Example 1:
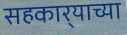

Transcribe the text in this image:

सहकार्‍याच्या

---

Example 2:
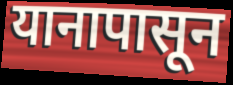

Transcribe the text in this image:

यानापासून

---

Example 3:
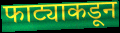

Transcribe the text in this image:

फाट्याकडून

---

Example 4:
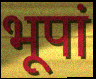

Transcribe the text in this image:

भूपां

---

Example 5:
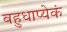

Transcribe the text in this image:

बहुधाप्येकं